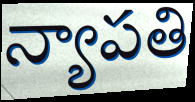
న్యాపతి